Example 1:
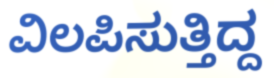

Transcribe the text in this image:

ವಿಲಪಿಸುತ್ತಿದ್ದ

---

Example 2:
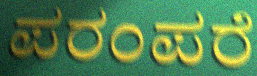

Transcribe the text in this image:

ಪರಂಪರೆ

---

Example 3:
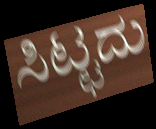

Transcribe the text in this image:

ಸಿಟ್ಟದು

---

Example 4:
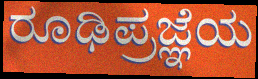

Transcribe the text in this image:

ರೂಢಿಪ್ರಜ್ಞೆಯ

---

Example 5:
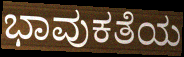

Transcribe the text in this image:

ಭಾವುಕತೆಯ